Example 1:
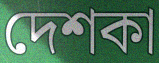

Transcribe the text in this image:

দেশকা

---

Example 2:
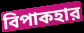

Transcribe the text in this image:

বিপাকহার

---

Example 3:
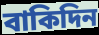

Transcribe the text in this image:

বাকিদিন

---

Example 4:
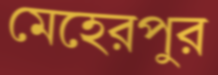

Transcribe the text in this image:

মেহেরপুর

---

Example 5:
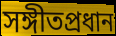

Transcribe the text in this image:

সঙ্গীতপ্রধান